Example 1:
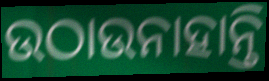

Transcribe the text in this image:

ଉଠାଉନାହାନ୍ତି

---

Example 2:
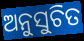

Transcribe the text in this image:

ଅନୁସୁଚିତ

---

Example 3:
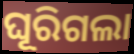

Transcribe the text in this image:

ଘୂରିଗଲା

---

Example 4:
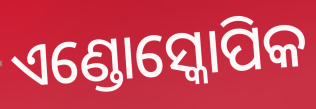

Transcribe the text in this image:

ଏଣ୍ଡୋସ୍କୋପିକ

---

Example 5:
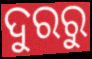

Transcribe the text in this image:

ଦୁରରୁ